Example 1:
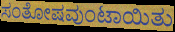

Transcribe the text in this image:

ಸಂತೋಷವುಂಟಾಯಿತು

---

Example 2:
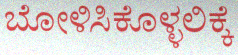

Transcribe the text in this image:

ಬೋಳಿಸಿಕೊಳ್ಳಲಿಕ್ಕೆ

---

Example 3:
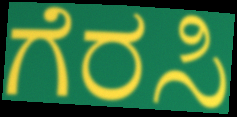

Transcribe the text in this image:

ಗೆರಸಿ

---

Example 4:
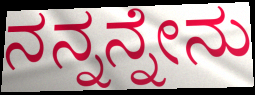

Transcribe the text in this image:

ನನ್ನನ್ನೇನು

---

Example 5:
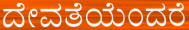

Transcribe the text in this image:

ದೇವತೆಯೆಂದರೆ